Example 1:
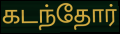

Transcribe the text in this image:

கடந்தோர்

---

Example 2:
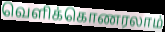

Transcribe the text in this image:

வெளிக்கொணரலாம்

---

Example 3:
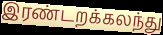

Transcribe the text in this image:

இரண்டறக்கலந்து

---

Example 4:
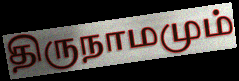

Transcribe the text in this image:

திருநாமமும்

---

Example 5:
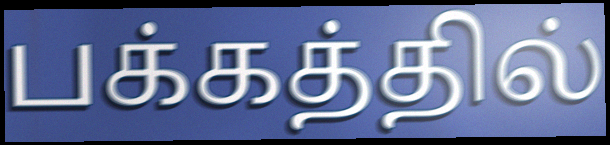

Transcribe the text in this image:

பக்கத்தில்